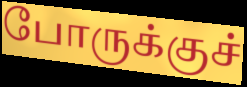
போருக்குச்